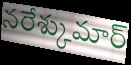
నరేశ్కుమార్